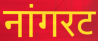
नांगरट